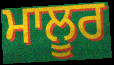
ਮਾਲੂਰ